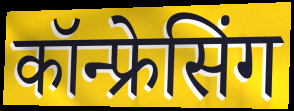
कॉन्फ्रेसिंग